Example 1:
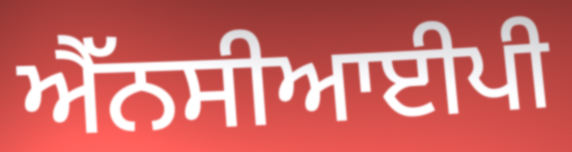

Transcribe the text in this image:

ਐੱਨਸੀਆਈਪੀ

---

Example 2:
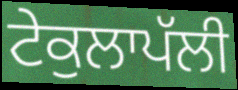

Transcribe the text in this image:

ਟੇਕੁਲਾਪੱਲੀ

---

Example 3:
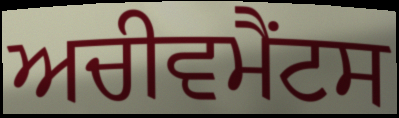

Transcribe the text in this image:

ਅਚੀਵਮੈਂਟਸ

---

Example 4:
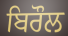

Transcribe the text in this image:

ਬਿਰੌਲ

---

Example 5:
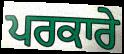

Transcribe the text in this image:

ਪਰਕਾਰੇ